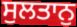
ਸੁਲਤਾਨੁ